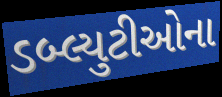
ડબ્લ્યુટીઓના